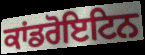
ਕਾਂਡਰੋਇਟਿਨ